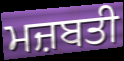
ਮਜ਼ਬਤੀ